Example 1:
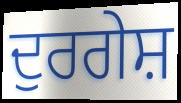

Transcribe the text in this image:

ਦੁਰਗੇਸ਼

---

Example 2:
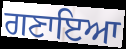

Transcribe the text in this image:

ਗਣਾਇਆ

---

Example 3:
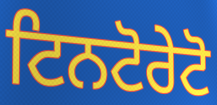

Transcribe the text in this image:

ਟਿਨਟੋਰੇਟੋ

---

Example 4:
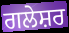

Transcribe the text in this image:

ਗਲੇਸ਼ਰ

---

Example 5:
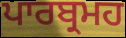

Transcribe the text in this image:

ਪਾਰਬ੍ਰਮਹ